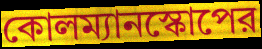
কোলম্যানস্কোপের